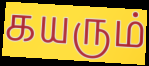
கயரும்